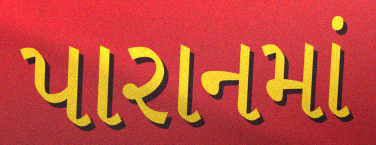
પારાનમાં